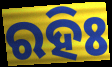
ରହିଃ